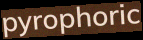
pyrophoric